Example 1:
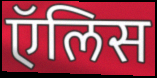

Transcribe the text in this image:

ऍलिस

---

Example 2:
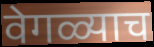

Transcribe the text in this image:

वेगळ्याच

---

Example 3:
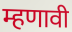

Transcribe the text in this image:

म्हणावी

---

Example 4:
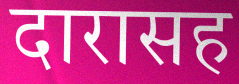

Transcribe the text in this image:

दारासह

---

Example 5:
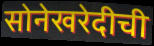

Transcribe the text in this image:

सोनेखरेदीची